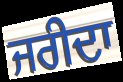
ਜਰੀਦਾ